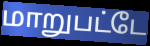
மாறுபட்டே